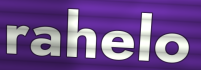
rahelo